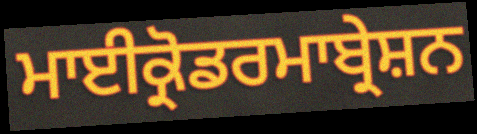
ਮਾਈਕ੍ਰੋਡਰਮਾਬ੍ਰੇਸ਼ਨ